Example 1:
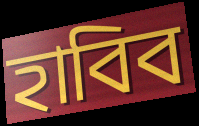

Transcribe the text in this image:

হাবিব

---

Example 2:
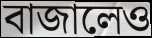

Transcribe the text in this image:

বাজালেও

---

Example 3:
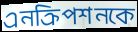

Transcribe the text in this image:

এনক্রিপশনকে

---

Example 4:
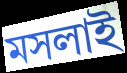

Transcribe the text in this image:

মসলাই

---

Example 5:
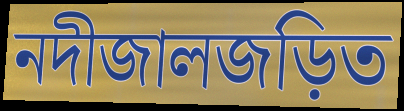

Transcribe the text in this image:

নদীজালজড়িত